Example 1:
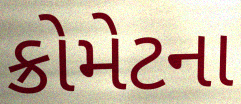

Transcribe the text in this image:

ક્રોમેટના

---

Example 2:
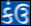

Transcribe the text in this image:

કંઉ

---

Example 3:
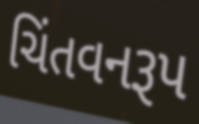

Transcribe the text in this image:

ચિંતવનરૂપ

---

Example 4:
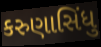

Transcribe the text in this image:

કરુણાસિંધુ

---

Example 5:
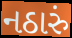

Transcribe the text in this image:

નઠારું